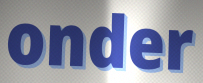
onder